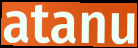
atanu